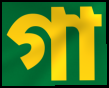
গা